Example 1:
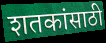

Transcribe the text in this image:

शतकांसाठी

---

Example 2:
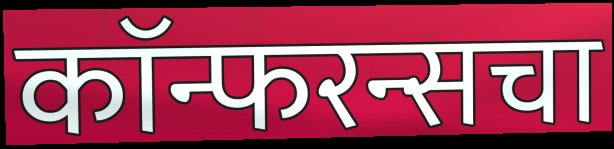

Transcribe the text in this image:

कॉन्फरन्सचा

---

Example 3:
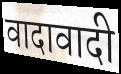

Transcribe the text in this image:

वादावादी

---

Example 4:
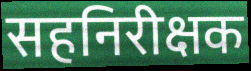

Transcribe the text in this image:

सहनिरीक्षक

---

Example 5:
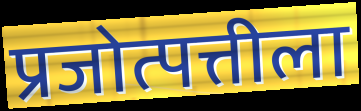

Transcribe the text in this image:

प्रजोत्पत्तीला